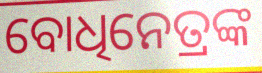
ବୋଧିନେତ୍ରଙ୍କ